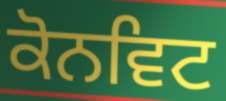
ਕੋਨਵਿਟ